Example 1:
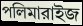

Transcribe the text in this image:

পলিমারাইজ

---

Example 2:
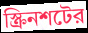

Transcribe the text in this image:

স্ক্রিনশটের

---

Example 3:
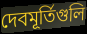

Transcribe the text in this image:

দেবমূর্তিগুলি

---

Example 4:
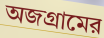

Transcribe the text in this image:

অজগ্রামের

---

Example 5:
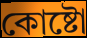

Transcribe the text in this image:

কোষ্টো